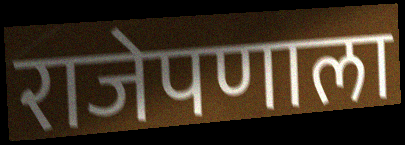
राजेपणाला